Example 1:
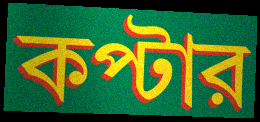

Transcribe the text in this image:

কপ্টার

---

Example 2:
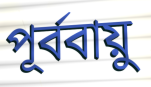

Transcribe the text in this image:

পূর্ববায়ু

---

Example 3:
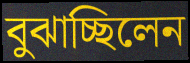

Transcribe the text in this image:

বুঝাচ্ছিলেন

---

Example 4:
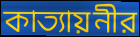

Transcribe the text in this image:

কাত্যায়নীর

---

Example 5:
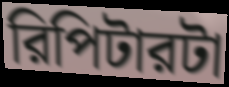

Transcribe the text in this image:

রিপিটারটা